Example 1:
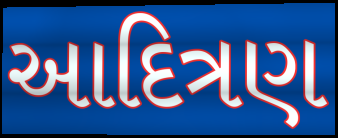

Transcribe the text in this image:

આદિત્રણ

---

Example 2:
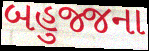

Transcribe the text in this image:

બહુજ્જના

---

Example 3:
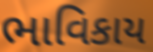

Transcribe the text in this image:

ભાવિકાય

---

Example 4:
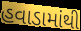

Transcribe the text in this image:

હવાડામાંથી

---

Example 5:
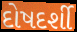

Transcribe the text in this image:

દોષદર્શી